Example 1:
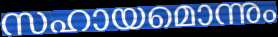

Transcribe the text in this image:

സഹായമൊന്നും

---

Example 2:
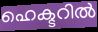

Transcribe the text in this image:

ഹെക്ടറിൽ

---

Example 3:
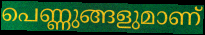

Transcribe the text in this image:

പെണ്ണുങ്ങളുമാണ്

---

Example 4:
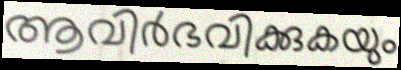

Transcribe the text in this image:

ആവിർഭവിക്കുകയും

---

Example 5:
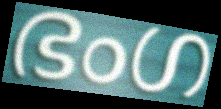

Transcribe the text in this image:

ഭംഗ